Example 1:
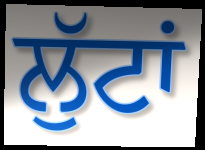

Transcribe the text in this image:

ਲੁੱਟਾਂ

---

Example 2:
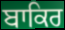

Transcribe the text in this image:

ਬਾਕਿਰ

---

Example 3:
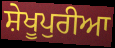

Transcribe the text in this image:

ਸ਼ੇਖੂਪੁਰੀਆ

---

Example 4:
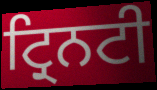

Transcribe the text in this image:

ਟ੍ਰਿਨਟੀ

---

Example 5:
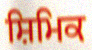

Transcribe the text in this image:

ਸ਼ਿਮਿਕ